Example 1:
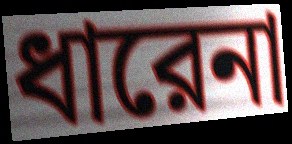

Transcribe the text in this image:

ধারেনা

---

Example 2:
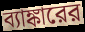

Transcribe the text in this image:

ব্যাঙ্কারের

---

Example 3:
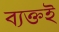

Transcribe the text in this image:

ব্যক্তই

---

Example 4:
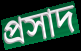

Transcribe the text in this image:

প্রসাদ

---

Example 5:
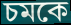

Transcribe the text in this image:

চমকে